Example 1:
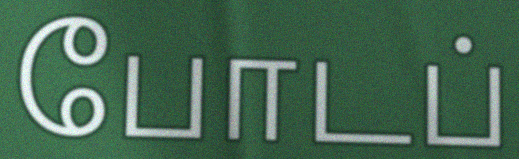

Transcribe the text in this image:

போடப்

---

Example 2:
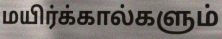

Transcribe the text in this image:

மயிர்க்கால்களும்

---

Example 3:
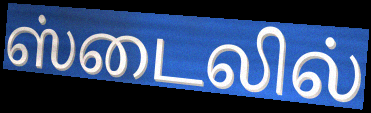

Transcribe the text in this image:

ஸ்டைலில்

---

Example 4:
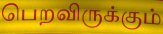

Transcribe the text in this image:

பெறவிருக்கும்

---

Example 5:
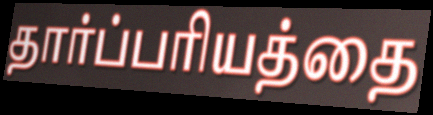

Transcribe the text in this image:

தார்ப்பரியத்தை